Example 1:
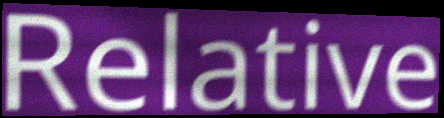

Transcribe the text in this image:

Relative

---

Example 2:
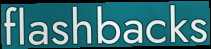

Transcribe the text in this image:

flashbacks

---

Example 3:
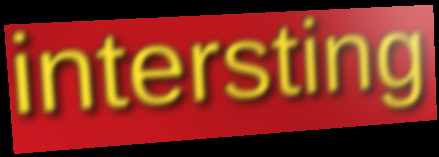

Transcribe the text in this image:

intersting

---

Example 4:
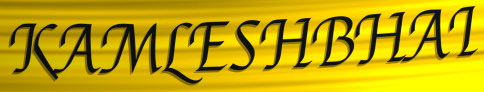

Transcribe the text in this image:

KAMLESHBHAI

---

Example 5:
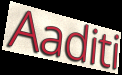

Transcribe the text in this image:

Aaditi